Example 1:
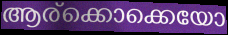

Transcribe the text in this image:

ആര്ക്കൊക്കെയോ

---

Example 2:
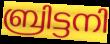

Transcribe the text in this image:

ബ്രിട്ടനി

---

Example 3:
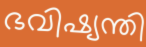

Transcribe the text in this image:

ഭവിഷ്യന്തി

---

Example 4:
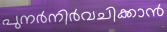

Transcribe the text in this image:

പുനർനിർവചിക്കാൻ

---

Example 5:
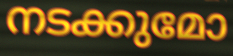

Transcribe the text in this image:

നടക്കുമോ